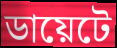
ডায়েটে